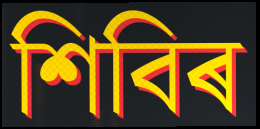
শিবিৰ